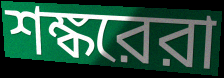
শঙ্করেরা